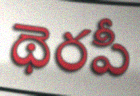
థెరపీ